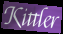
Kittler